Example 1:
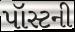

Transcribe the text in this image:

પૉસ્ટની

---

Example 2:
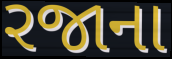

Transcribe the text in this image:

રજાના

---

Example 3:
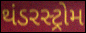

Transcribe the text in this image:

થંડરસ્ટ્રોમ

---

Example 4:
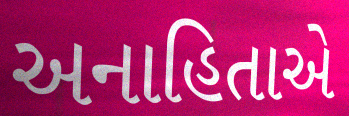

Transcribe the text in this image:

અનાહિતાએ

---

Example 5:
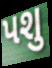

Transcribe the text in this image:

પશુ